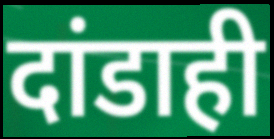
दांडाही